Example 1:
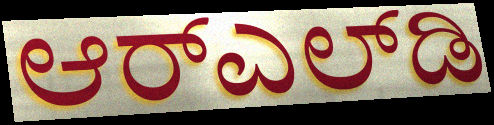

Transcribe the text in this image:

ಆರ್‌ಎಲ್‌ಡಿ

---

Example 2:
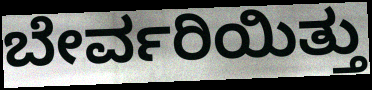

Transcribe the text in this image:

ಬೇರ್ವರಿಯಿತ್ತು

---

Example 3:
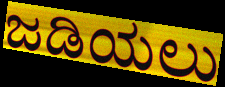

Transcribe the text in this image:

ಜಡಿಯಲು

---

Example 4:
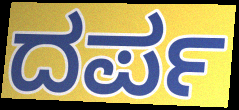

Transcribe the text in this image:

ದರ್ಪ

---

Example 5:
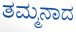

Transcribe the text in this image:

ತಮ್ಮನಾದ